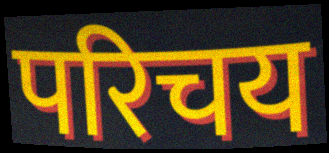
परिचय